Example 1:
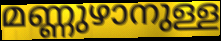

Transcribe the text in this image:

മണ്ണുഴാനുള്ള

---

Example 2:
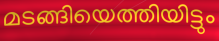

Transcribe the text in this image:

മടങ്ങിയെത്തിയിട്ടും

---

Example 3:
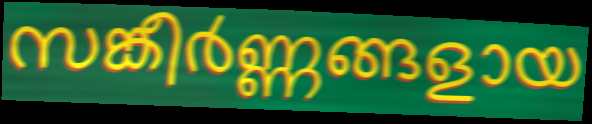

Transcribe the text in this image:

സങ്കീർണ്ണങ്ങളായ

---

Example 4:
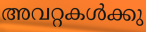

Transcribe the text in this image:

അവറ്റകൾക്കു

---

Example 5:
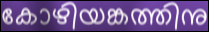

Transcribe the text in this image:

കോഴിയങ്കത്തിനു